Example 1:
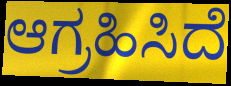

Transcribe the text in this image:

ಆಗ್ರಹಿಸಿದೆ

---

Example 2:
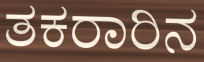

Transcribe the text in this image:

ತಕರಾರಿನ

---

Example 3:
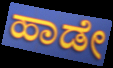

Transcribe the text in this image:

ಹಾಡೇ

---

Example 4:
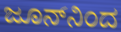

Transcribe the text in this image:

ಜೂನ್‌ನಿಂದ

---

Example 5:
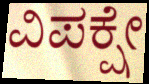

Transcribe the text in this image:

ವಿಪಕ್ಷೇ